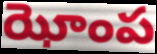
ఝోంప